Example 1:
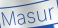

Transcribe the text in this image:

Masur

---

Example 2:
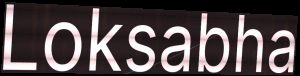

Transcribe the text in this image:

Loksabha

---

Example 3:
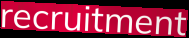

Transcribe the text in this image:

recruitment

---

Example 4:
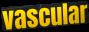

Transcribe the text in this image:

vascular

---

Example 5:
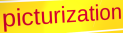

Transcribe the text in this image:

picturization